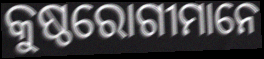
କୁଷ୍ଠରୋଗୀମାନେ